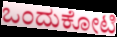
ಒಂದುಕೋಟಿ